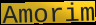
Amorim